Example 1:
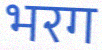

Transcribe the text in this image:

भरग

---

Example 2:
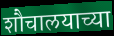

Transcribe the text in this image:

शौचालयाच्या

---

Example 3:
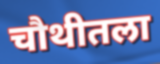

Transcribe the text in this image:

चौथीतला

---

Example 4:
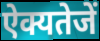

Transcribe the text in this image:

ऐक्यतेजें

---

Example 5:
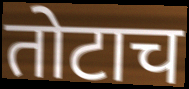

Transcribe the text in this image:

तोटाच